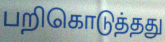
பறிகொடுத்தது